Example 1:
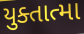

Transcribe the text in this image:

યુક્તાત્મા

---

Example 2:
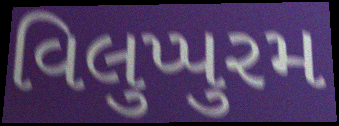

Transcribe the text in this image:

વિલુપ્પુરમ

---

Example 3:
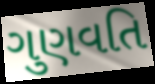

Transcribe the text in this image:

ગુણવતિ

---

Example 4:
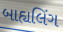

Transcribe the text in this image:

બાહ્યલિંગ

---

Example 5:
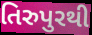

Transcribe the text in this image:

તિરુપુરથી